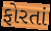
ફોરતાં